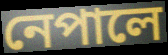
নেপালে